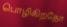
பொழிகிறதோ